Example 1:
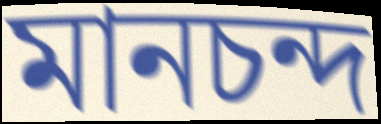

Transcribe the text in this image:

মানচন্দ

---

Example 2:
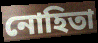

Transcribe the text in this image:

নোহিতা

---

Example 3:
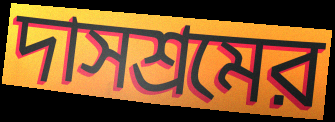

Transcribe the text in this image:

দাসশ্রমের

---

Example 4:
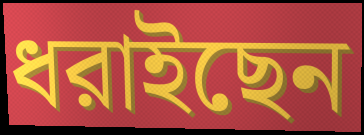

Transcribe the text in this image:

ধরাইছেন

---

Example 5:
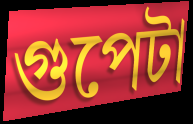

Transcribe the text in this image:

গুপেটা